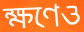
ক্ষণেও